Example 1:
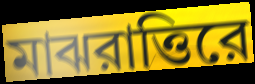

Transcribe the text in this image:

মাঝরাত্তিরে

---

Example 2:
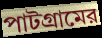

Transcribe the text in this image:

পাটগ্রামের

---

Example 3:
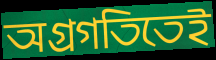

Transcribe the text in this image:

অগ্রগতিতেই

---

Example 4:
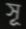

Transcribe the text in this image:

সূ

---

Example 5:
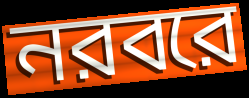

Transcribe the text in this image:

নরবরে